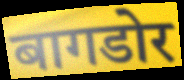
बागडोर